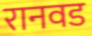
रानवड